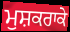
ਮੁਸ਼ਕਰਾਕੇ